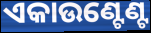
ଏକାଉଣ୍ଟେଣ୍ଟ